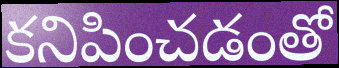
కనిపించడంతో